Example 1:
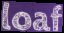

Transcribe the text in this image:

loaf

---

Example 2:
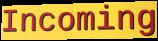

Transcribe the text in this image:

Incoming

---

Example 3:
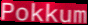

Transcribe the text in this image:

Pokkum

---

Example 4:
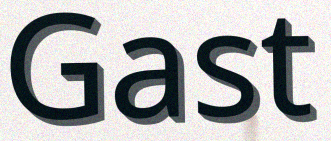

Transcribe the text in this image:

Gast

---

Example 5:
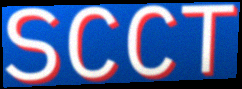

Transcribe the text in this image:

SCCT